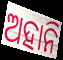
ଅହାନି